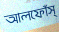
আলফোঁস্